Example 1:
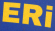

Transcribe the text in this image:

ERi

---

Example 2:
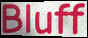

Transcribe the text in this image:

Bluff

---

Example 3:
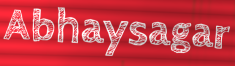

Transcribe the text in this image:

Abhaysagar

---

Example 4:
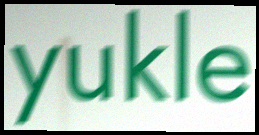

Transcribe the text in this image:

yukle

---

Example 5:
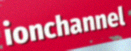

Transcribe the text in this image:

ionchannel